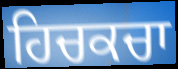
ਹਿਚਕਚਾ